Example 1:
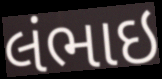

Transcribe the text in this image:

લંભાઇ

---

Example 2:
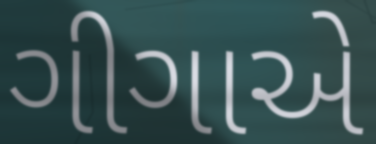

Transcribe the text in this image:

ગીગાએ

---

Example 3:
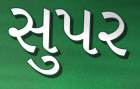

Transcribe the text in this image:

સુપર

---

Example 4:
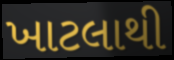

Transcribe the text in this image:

ખાટલાથી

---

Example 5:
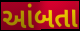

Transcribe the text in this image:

આંબતા